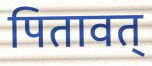
पितावत्